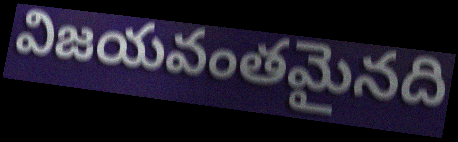
విజయవంతమైనది